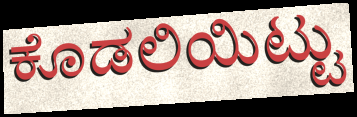
ಕೊಡಲಿಯಿಟ್ಟು